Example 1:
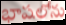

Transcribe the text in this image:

భాషలోను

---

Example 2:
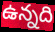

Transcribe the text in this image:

ఉన్నది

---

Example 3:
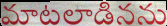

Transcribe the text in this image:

మాటలాడినను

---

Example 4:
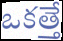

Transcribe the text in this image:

ఒకత్తే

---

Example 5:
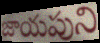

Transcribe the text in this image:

జాయపుని